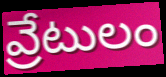
వ్రేటులం